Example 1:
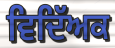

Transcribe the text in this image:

ਵਿਦਿੱਅਕ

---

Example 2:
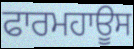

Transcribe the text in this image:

ਫਾਰਮਹਾਊਸ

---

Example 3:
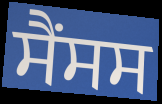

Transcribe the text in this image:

ਸੈਂਸਸ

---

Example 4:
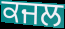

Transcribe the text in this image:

ਕਜਲ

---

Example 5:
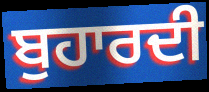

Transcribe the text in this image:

ਬੁਹਾਰਦੀ